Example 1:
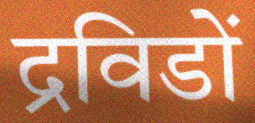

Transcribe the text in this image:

द्रविडों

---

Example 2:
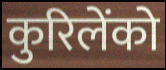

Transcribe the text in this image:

कुरिलेंको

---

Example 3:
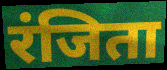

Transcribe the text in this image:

रंजिता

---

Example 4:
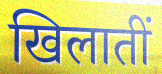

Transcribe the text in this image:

खिलातीं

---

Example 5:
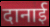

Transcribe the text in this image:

दानाई